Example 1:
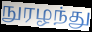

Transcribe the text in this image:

நுரழந்து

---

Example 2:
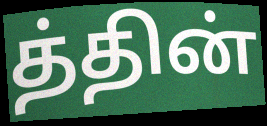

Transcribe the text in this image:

த்தின்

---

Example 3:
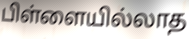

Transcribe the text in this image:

பிள்ளையில்லாத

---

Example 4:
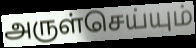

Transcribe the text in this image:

அருள்செய்யும்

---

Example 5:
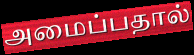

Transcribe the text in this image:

அமைப்பதால்